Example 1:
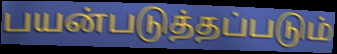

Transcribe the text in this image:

பயன்படுத்தப்படும்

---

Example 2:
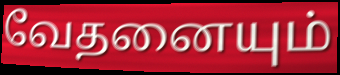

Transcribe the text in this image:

வேதனையும்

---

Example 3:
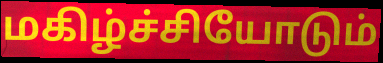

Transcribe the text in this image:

மகிழ்ச்சியோடும்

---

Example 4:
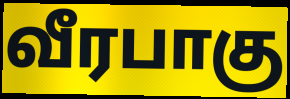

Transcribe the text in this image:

வீரபாகு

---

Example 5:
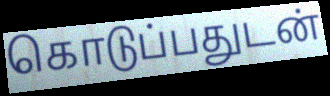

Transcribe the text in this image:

கொடுப்பதுடன்